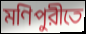
মণিপুরীতে